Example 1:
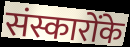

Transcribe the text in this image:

संस्कारोंके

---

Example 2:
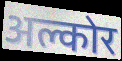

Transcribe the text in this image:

अल्कोर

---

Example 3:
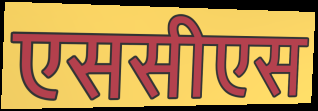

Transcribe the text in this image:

एससीएस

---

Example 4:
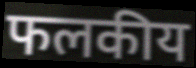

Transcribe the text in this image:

फलकीय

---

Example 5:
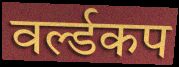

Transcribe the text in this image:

वर्ल्‍डकप